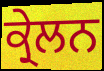
ਕ੍ਰੇਲਨ